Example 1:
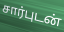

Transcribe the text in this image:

சார்புடன்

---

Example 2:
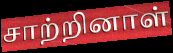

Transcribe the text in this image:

சாற்றினாள்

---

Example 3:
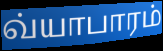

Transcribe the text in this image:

வ்யாபாரம்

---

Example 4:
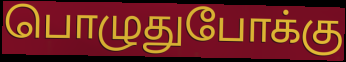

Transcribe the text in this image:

பொழுதுபோக்கு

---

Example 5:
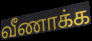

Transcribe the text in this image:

வீணாக்க